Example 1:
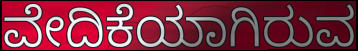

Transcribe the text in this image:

ವೇದಿಕೆಯಾಗಿರುವ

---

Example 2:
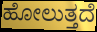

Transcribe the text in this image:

ಹೋಲುತ್ತದೆ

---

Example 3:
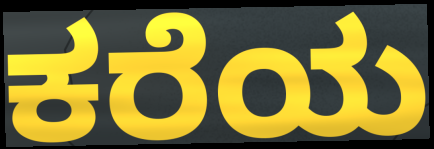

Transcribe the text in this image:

ಕರೆಯ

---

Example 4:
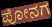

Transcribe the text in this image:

ಪೋನಗ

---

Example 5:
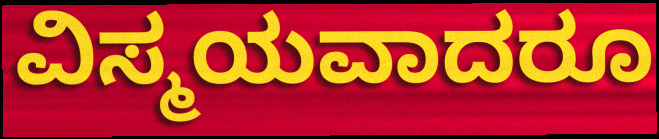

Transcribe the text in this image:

ವಿಸ್ಮಯವಾದರೂ